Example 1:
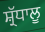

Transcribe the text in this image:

ਸ਼੍ਰੱਧਾਲੂ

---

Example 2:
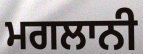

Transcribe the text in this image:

ਮਗਲਾਨੀ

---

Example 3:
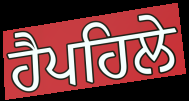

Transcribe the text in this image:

ਹੈਪਹਿਲੇ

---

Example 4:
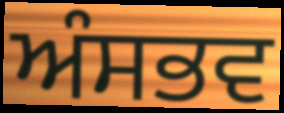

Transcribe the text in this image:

ਅੰਸਭਵ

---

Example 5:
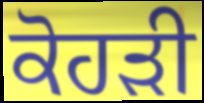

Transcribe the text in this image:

ਕੋਹੜੀ